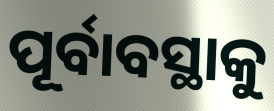
ପୂର୍ବାବସ୍ଥାକୁ